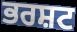
ਭਰਸ਼ਟ